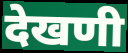
देखणी